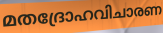
മതദ്രോഹവിചാരണ